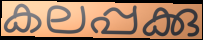
കലപ്പക്കു